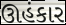
ઊહંકાર